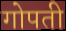
गोपती